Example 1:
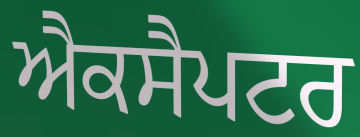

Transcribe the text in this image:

ਐਕਸੈਪਟਰ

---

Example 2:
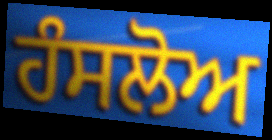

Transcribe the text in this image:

ਹੰਸਲੋਅ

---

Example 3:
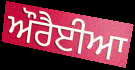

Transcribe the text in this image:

ਔਰੈਈਆ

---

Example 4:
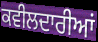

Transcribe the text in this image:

ਕਵੀਲਦਾਰੀਆਂ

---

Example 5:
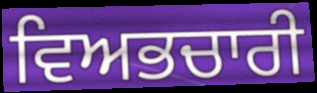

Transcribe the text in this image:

ਵਿਅਭਚਾਰੀ